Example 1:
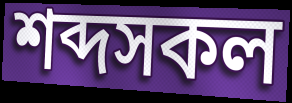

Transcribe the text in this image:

শব্দসকল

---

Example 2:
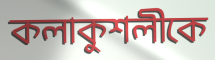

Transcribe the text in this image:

কলাকুশলীকে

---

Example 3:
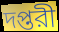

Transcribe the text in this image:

দপ্তরী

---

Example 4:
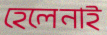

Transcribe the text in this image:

হেলেনাই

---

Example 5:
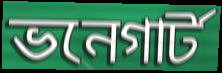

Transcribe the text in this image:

ভনেগার্ট